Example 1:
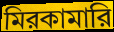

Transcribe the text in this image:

মিরকামারি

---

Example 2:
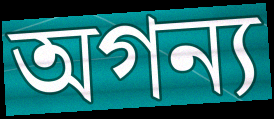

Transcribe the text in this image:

অগন্য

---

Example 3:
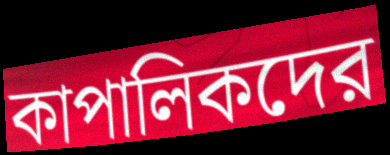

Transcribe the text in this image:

কাপালিকদের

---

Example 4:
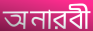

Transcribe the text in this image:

অনারবী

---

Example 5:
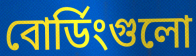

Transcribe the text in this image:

বোর্ডিংগুলো